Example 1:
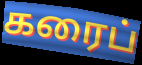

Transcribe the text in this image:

கரைப்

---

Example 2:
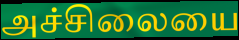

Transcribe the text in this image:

அச்சிலையை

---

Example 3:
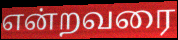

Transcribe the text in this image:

என்றவரை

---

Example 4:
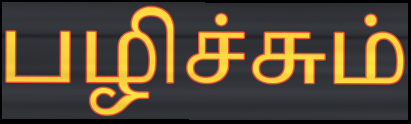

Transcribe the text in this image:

பழிச்சும்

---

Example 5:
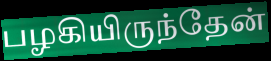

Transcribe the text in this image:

பழகியிருந்தேன்